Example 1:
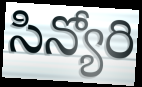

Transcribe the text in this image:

సిన్యోరి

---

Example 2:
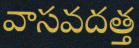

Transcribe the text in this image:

వాసవదత్త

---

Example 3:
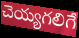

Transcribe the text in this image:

చెయ్యగలిగే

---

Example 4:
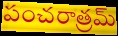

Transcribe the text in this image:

పంచరాత్రమ్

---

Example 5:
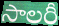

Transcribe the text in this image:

సాలరీ